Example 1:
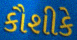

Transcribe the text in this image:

કૌશીકે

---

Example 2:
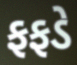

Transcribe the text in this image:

ફફડે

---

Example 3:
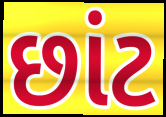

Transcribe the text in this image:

છાંટ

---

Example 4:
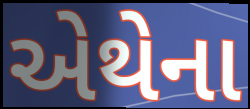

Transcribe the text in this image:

એથેના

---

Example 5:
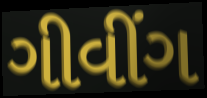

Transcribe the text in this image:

ગીવીંગ